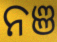
ନଞ